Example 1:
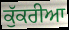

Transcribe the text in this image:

ਕੁੱਕਰੀਆ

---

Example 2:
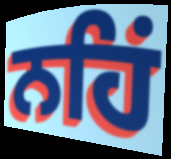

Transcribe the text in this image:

ਨਹਿਂ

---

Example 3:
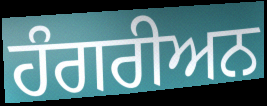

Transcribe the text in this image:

ਹੰਗਰੀਅਨ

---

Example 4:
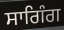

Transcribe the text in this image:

ਸਾਗਿੰਗ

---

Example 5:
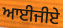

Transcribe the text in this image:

ਆਈਜੀਏ